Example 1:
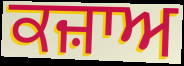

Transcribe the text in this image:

ਕਜ਼ਾਅ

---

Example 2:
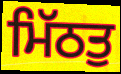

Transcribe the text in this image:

ਮਿੱਠਤੁ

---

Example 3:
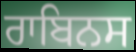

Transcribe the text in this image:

ਰਾਬਿਨਸ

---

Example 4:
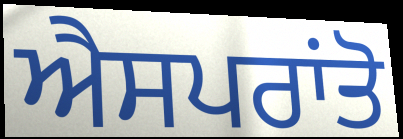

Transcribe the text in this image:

ਐਸਪਰਾਂਤੋ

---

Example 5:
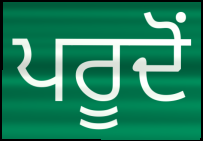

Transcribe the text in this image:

ਪਰੂਦੋਂ